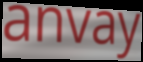
anvay